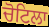
ਚੋਟਿਲਾ